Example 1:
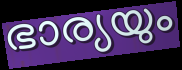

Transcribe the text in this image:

ഭാര്യയും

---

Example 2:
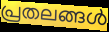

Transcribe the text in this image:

പ്രതലങ്ങൾ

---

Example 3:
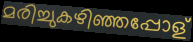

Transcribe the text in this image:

മരിച്ചുകഴിഞ്ഞപ്പോള്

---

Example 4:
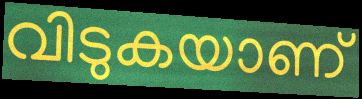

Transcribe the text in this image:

വിടുകയാണ്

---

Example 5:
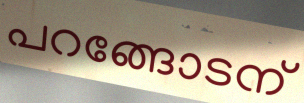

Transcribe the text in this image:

പറങ്ങോടന്